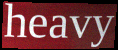
heavy